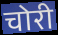
चोरी